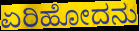
ಏರಿಹೋದನು